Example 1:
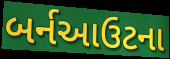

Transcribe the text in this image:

બર્નઆઉટના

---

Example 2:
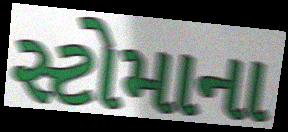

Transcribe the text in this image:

સ્ટોમાના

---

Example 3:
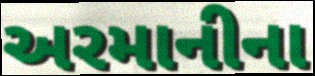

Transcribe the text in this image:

અરમાનીના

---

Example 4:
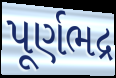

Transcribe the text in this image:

પૂર્ણભદ્ર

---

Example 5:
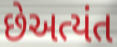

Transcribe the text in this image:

છેઅત્યંત